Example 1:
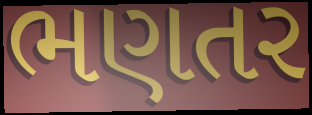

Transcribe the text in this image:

ભણતર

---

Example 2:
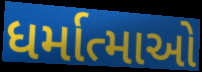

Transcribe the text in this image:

ધર્માત્માઓ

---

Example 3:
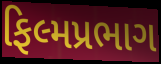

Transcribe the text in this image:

ફિલ્મપ્રભાગ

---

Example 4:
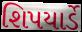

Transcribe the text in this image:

શિપયાર્ડે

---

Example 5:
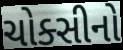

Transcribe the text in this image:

ચોક્સીનો